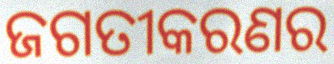
ଜଗତୀକରଣର